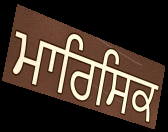
ਮਾਰਿਸਿਕ